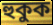
হুকুক